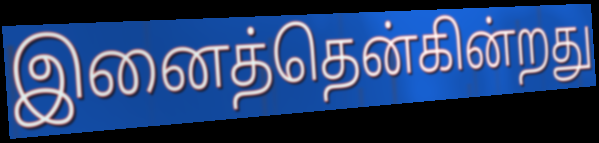
இனைத்தென்கின்றது